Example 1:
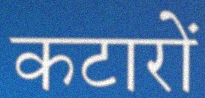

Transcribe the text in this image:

कटारों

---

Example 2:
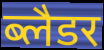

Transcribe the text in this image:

ब्लैडर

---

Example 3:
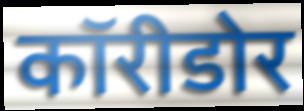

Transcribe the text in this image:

कॉरीडोर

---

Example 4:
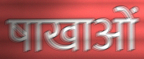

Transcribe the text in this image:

षाखाओं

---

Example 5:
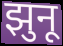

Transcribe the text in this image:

झुनू